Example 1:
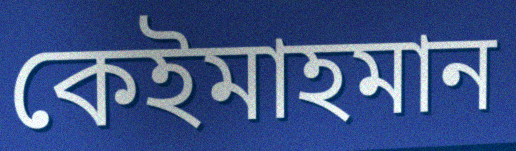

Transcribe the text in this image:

কেইমাহমান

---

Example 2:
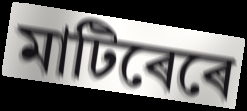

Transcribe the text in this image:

মাটিৰেৰে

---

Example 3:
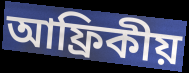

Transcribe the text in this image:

আফ্ৰিকীয়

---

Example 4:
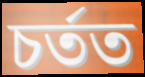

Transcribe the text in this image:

চৰ্তত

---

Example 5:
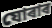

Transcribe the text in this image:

যোৰাৰ